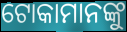
ଟୋକାମାନଙ୍କୁ